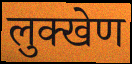
लुक्खेण